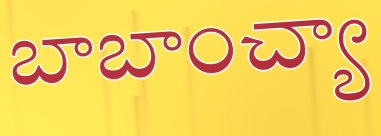
బాబాంచ్యా